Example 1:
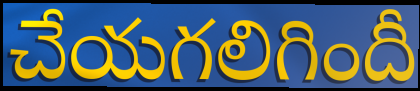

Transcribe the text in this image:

చేయగలిగిందీ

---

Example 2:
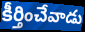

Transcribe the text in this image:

కీర్తించేవాడు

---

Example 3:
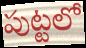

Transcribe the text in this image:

పుట్టలో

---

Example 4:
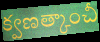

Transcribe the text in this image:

క్వణత్కాంచీ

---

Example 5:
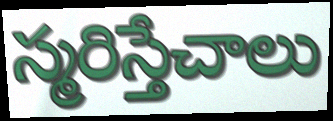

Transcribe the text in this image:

స్మరిస్తేచాలు